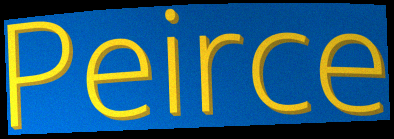
Peirce